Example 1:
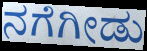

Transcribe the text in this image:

ನಗೆಗೀಡು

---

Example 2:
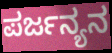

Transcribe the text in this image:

ಪರ್ಜನ್ಯನ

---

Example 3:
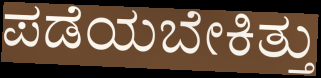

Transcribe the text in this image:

ಪಡೆಯಬೇಕಿತ್ತು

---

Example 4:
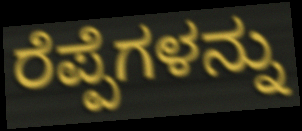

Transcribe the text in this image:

ರೆಪ್ಪೆಗಳನ್ನು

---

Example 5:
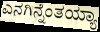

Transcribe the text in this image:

ಎನಗಿನ್ನೆಂತಯ್ಯಾ